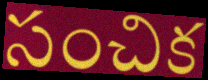
సంచిక